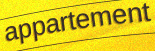
appartement